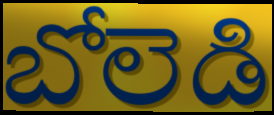
బోలెడి